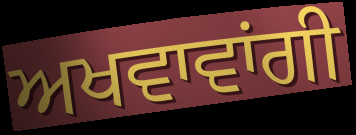
ਅਖਵਾਵਾਂਗੀ